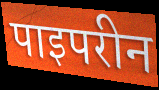
पाइपरीन